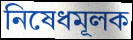
নিষেধমূলক